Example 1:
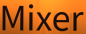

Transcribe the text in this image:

Mixer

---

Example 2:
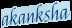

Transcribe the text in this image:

akanksha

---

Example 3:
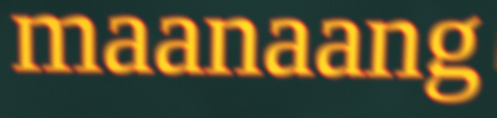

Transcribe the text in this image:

maanaang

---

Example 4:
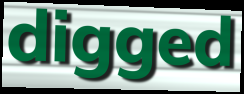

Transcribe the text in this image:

digged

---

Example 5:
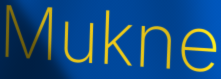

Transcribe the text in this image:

Mukne